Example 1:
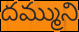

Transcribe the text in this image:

దమ్ముని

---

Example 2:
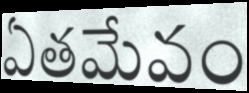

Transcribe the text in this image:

ఏతమేవం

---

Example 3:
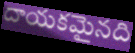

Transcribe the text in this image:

దాయకమైనది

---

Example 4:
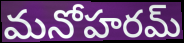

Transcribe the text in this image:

మనోహరమ్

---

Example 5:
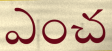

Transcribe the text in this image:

ఎంచ